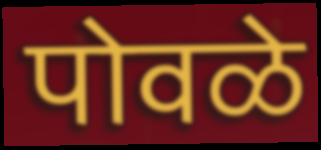
पोवळे